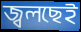
জ্বলছেই